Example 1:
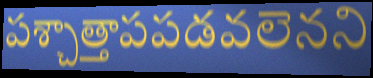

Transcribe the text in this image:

పశ్చాత్తాపపడవలెనని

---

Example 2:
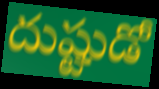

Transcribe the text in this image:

దుష్టుడో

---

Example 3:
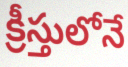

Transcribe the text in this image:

క్రీస్తులోనే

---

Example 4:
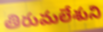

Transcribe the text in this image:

తిరుమలేశుని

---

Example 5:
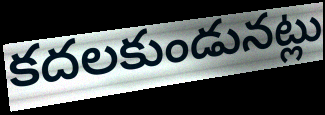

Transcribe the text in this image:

కదలకుండునట్లు